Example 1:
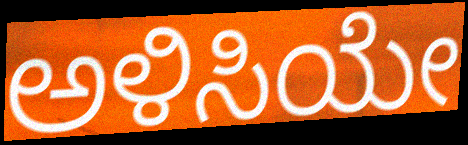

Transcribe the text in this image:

ಅಳಿಸಿಯೇ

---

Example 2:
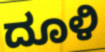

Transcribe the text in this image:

ದೂಳಿ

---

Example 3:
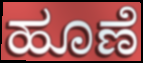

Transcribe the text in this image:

ಹೂಣೆ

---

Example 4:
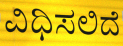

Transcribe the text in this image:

ವಿಧಿಸಲಿದೆ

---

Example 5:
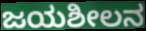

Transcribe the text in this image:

ಜಯಶೀಲನ